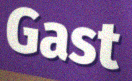
Gast